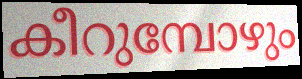
കീറുമ്പോഴും